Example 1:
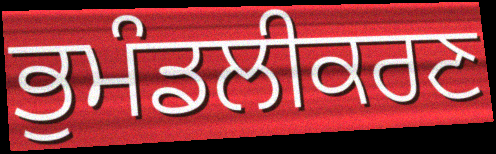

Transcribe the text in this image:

ਭੁਮੰਡਲੀਕਰਣ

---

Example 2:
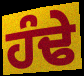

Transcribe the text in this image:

ਹੰਢੇ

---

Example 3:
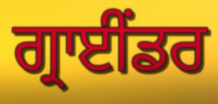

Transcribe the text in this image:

ਗ੍ਰਾਈਂਡਰ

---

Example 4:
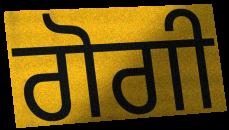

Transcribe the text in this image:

ਗੋਗੀ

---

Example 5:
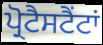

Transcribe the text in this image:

ਪ੍ਰੋਟੈਸਟੈਂਟਾਂ